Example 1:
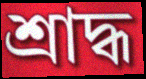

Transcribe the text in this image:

শ্ৰাদ্ধ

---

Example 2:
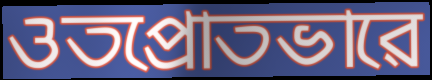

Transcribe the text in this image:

ওতপ্ৰোতভাৱে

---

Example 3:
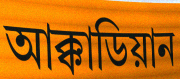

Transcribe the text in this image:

আক্কাডিয়ান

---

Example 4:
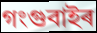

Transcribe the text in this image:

গংগুবাইৰ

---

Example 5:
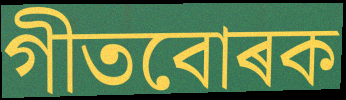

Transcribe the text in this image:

গীতবোৰক